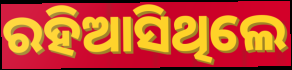
ରହିଆସିଥିଲେ